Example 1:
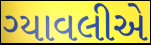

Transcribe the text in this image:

ગ્યાવલીએ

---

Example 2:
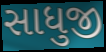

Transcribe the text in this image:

સાધુજી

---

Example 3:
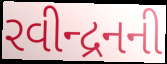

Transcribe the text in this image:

રવીન્દ્રનની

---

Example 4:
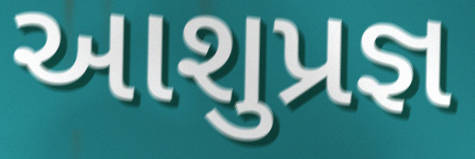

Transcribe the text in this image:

આશુપ્રજ્ઞ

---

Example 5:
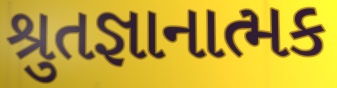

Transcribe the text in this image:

શ્રુતજ્ઞાનાત્મક